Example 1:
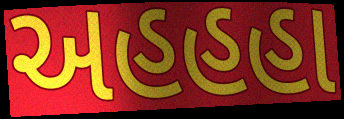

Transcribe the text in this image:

અહહહા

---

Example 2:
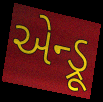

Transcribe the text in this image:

એન્ડ્રૂ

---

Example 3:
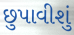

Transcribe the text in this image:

છુપાવીશું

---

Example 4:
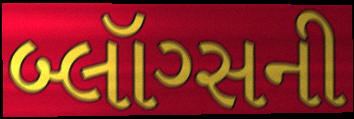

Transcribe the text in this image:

બ્લૉગ્સની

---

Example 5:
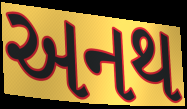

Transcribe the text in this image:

અનથ